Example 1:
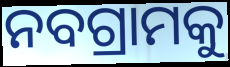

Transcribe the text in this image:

ନବଗ୍ରାମକୁ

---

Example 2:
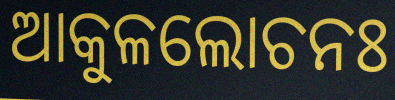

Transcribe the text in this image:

ଆକୁଳଲୋଚନଃ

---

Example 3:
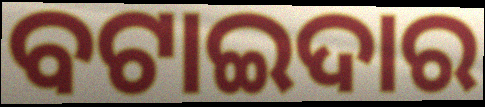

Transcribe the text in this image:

ବଟାଇଦାର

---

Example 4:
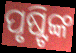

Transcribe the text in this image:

ପୃଷ୍ଟିଙ୍କ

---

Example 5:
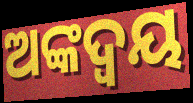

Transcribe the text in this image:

ଅଙ୍କଦ୍ବୟ